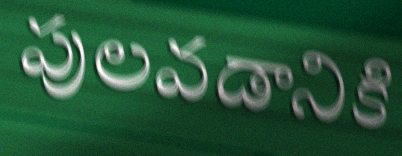
పులవడానికి